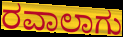
ರವಾಲಾಗು